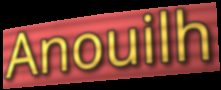
Anouilh